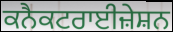
ਕਨੈਕਟਰਾਈਜ਼ੇਸ਼ਨ